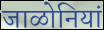
जाळोनियां